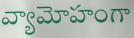
వ్యామోహంగా